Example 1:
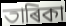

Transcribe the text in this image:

তাৰিকা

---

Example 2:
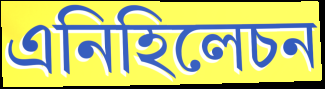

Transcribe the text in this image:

এনিহিলেচন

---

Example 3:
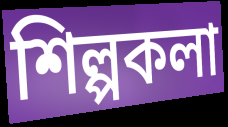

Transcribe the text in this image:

শিল্পকলা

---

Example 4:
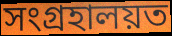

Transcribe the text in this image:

সংগ্ৰহালয়ত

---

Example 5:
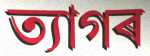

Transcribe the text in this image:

ত্যাগৰ